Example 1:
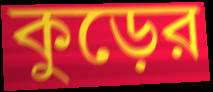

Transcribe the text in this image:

কুড়ের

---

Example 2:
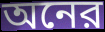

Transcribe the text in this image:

অনের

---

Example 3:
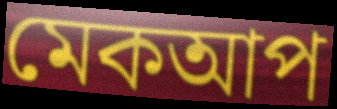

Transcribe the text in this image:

মেকআপ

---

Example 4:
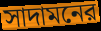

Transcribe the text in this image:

সাদামনের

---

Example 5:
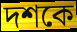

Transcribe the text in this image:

দশকে